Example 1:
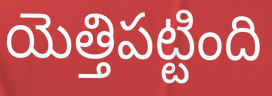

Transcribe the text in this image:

యెత్తిపట్టింది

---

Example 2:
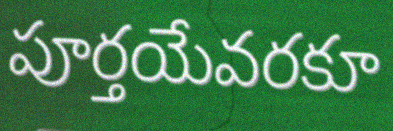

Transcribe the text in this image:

పూర్తయేవరకూ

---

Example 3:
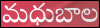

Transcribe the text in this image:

మధుబాల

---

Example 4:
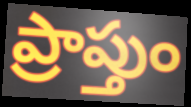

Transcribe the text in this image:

ప్రాప్తుం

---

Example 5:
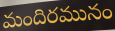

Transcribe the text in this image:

మందిరమునం